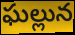
ఘల్లున